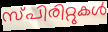
സ്പിരിറ്റുകൾ